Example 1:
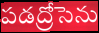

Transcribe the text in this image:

పడద్రోసెను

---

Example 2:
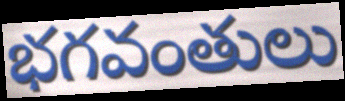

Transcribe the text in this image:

భగవంతులు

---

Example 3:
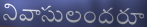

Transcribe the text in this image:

నివాసులందరూ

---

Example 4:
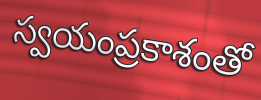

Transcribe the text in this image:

స్వయంప్రకాశంతో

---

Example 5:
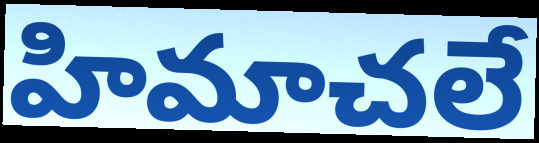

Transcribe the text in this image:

హిమాచలే